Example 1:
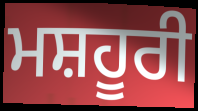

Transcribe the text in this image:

ਮਸ਼ਹੂਰੀ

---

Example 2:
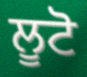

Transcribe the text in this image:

ਲੂਟੋ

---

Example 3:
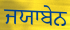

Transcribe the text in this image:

ਜਯਾਬੇਨ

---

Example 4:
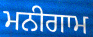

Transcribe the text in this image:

ਮਨੀਗਾਮ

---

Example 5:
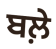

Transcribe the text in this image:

ਬਲ਼ੇ